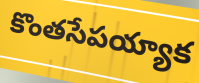
కొంతసేపయ్యాక